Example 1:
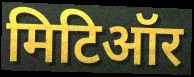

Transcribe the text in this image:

मिटिऑर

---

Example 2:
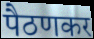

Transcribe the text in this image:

पैठणकर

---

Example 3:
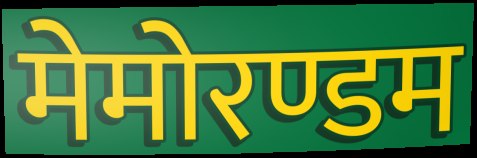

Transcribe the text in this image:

मेमोरण्डम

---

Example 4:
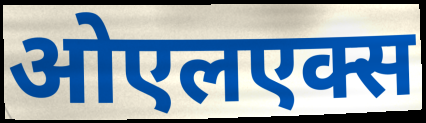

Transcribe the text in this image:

ओएलएक्स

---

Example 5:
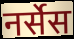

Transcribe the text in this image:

नर्सेस